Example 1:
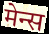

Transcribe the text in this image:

मेन्स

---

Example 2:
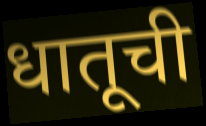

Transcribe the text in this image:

धातूची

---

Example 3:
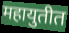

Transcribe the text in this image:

महायुतीत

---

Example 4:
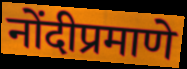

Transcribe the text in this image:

नोंदीप्रमाणे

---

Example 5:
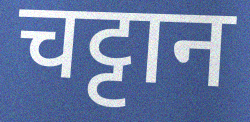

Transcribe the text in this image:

चट्टान